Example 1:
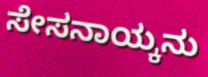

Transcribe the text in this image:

ಸೇಸನಾಯ್ಕನು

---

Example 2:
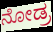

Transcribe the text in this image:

ನೋಡ್ರ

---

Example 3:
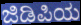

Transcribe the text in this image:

ಜಿಡಿಪಿಯ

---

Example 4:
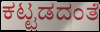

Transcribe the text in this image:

ಕಟ್ಟಡದಂತೆ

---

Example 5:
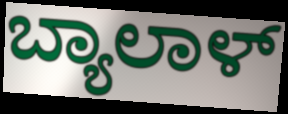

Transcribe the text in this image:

ಬ್ಯಾಲಾಳ್